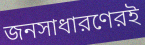
জনসাধারণেরই